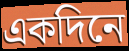
একদিনে